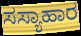
ಸಸ್ಯಾಹಾರ